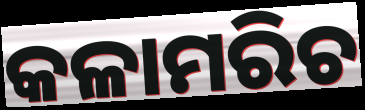
କଳାମରିଚ